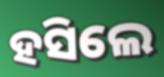
ହସିଲେ